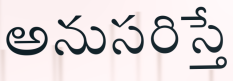
అనుసరిస్తే